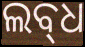
ଲବ୍‌ଧ